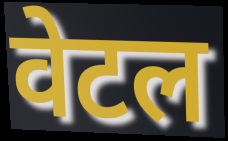
वेटल